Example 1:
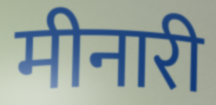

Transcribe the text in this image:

मीनारी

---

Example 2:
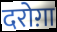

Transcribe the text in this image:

दरोग़ा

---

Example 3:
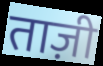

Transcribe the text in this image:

ताज़ी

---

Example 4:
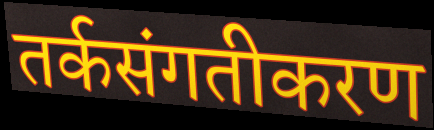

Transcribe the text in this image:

तर्कसंगतीकरण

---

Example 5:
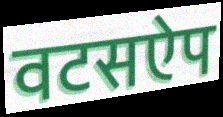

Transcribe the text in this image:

वटसऐप